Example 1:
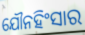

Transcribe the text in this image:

ଯୌନହିଂସାର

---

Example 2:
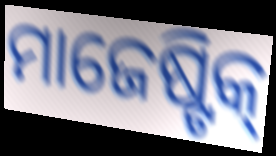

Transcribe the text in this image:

ମାଜେଷ୍ଟିକ୍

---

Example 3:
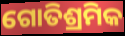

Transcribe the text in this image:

ଗୋତିଶ୍ରମିକ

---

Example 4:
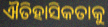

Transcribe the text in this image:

ଐତିହାସିକତାକୁ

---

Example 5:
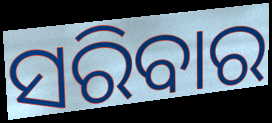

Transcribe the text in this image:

ସରିବାର